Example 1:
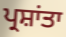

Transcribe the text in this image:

ਪ੍ਰਸ਼ਾਂਤਾ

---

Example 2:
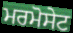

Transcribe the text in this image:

ਮਰਮੋਸੇਟ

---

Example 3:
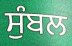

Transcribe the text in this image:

ਸੁੰਬਲ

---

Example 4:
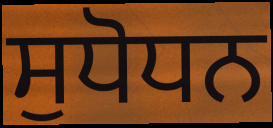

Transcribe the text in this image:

ਸੁਧੋਧਨ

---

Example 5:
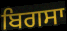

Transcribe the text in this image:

ਬਿਗਸਾ